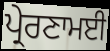
ਪ੍ਰੇਰਣਾਮਈ